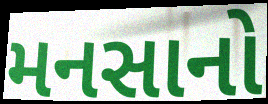
મનસાનો